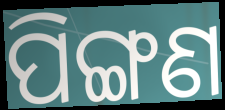
ପିଙ୍ଗଣ